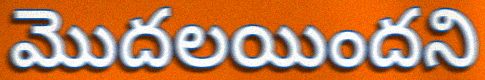
మొదలయిందని